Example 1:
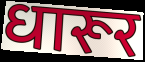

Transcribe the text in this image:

धारूर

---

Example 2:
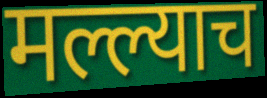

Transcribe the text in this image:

मल्ल्याच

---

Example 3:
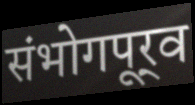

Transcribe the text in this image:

संभोगपूर्व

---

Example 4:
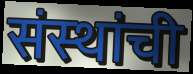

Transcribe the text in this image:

संस्थांची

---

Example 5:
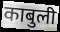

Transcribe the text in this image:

काबुली